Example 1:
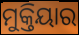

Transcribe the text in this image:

ମୁକ୍ତିୟାର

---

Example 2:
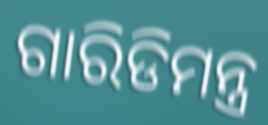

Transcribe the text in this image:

ଗାରିଡିମନ୍ତ୍ର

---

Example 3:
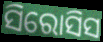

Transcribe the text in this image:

ସିରୋସିସ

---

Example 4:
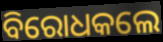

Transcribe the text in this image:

ବିରୋଧକଲେ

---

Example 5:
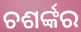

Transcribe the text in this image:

ଚଶର୍ଙ୍କର